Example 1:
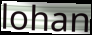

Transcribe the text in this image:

lohan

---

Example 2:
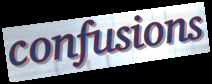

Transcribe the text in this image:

confusions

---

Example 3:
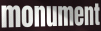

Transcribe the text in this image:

monument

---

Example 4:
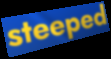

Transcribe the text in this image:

steeped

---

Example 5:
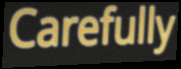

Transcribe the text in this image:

Carefully